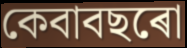
কেবাবছৰো